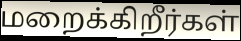
மறைக்கிறீர்கள்